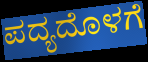
ಪದ್ಯದೊಳಗೆ